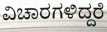
ವಿಚಾರಗಳಿದ್ದರೆ